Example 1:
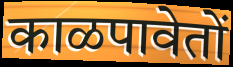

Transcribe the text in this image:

काळपावेतों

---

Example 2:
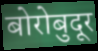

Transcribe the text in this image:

बोरोबुदूर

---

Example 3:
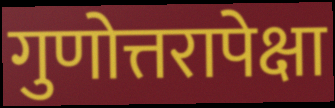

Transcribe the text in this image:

गुणोत्तरापेक्षा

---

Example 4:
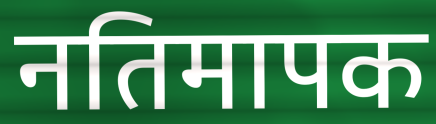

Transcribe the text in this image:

नतिमापक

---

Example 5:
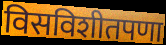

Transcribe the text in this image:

विसविशीतपणा